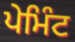
ਪੇਮਿੰਟ